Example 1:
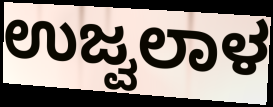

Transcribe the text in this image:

ಉಜ್ವಲಾಳ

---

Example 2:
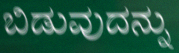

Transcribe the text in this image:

ಬಿಡುವುದನ್ನು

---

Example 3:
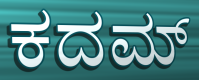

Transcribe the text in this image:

ಕದಮ್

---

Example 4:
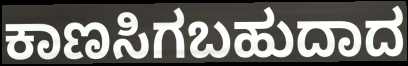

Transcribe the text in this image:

ಕಾಣಸಿಗಬಹುದಾದ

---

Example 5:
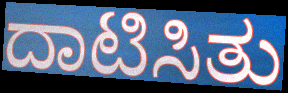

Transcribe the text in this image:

ದಾಟಿಸಿತು